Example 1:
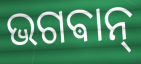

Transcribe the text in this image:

ଭଗଵାନ୍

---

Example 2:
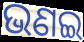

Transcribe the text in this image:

ଭଣଇ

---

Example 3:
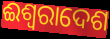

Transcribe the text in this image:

ଈଶ୍ୱରାଦେଶ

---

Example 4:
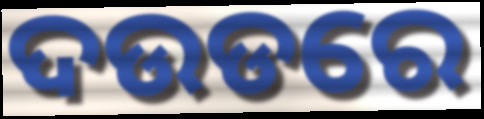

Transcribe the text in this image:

ଦଉଡରେ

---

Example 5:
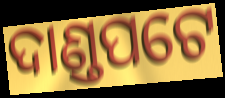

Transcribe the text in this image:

ଦାଣ୍ଡପଟେ